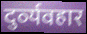
दुर्व्‍यवहार